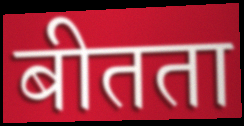
बीतता